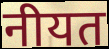
नीयत